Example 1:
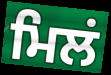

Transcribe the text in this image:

ਮਿਲਂ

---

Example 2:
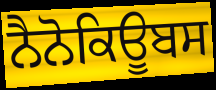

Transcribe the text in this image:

ਨੈਨੋਕਿਊਬਸ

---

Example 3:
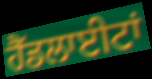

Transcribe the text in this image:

ਹੈੱਡਲਾਈਟਾਂ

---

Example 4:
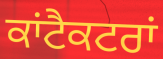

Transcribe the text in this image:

ਕਾਂਟੈਕਟਰਾਂ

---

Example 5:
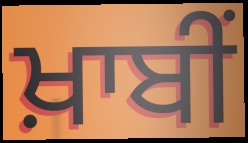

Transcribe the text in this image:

ਖ਼ਾਬੀਂ